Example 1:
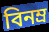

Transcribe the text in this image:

বিনম্র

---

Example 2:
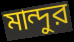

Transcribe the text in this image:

মান্দুর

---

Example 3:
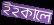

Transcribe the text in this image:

ইহকালে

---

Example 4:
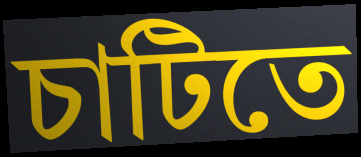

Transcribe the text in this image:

চাটিতে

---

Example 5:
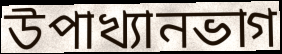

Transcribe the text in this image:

উপাখ্যানভাগ